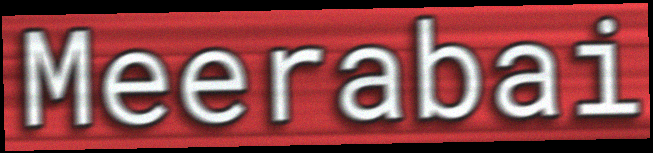
Meerabai